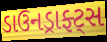
ડાઉનડ્રાફ્ટ્સ